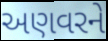
અણવરને